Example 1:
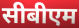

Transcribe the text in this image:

सीबीएम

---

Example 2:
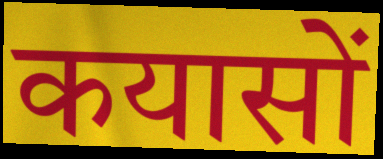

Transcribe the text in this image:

कयासों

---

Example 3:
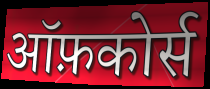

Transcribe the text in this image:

ऑफ़कोर्स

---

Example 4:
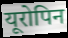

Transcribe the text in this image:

यूरोपिन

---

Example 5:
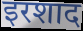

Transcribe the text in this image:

इरशाद